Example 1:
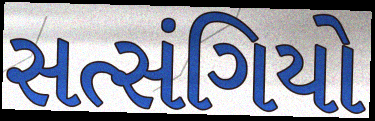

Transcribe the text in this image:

સત્સંગિયો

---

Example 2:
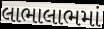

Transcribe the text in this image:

લાભાલાભમાં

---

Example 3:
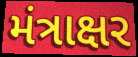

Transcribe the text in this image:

મંત્રાક્ષર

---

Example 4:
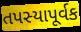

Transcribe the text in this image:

તપસ્યાપૂર્વક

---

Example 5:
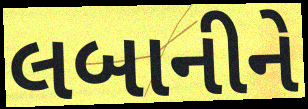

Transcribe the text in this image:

લબાનીને